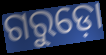
ଗରୁଡ଼ୋ